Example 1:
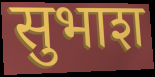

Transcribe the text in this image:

सुभाश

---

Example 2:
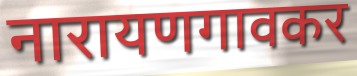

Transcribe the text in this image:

नारायणगावकर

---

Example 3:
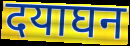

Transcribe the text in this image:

दयाघन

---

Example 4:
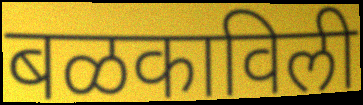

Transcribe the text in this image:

बळकाविली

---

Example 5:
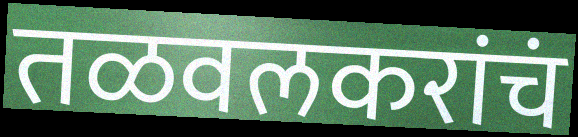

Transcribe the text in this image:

तळवलकरांचं